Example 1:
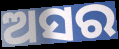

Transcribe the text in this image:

ଅସର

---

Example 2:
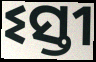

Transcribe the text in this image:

ଽସ୍ତୀ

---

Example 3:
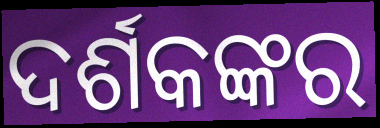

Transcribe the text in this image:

ଦର୍ଶକଙ୍କର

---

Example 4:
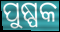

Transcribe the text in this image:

ପୁଷ୍ପକ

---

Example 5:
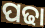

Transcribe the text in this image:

ପଢା